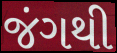
જંગથી